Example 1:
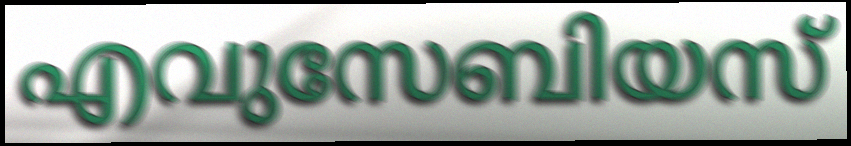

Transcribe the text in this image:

എവുസേബിയസ്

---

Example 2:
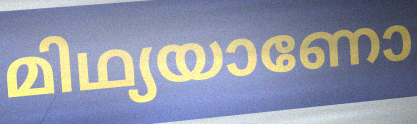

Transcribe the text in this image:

മിഥ്യയാണോ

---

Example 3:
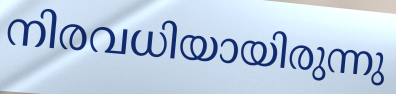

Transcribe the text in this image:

നിരവധിയായിരുന്നു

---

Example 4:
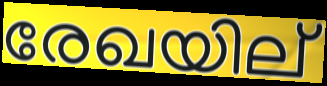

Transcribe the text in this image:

രേഖയില്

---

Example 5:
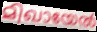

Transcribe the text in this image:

മിഖായേൽ